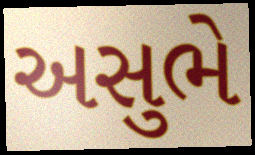
અસુભે